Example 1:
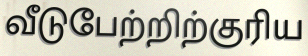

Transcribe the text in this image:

வீடுபேற்றிற்குரிய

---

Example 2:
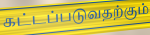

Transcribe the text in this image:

கட்டப்படுவதற்கும்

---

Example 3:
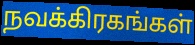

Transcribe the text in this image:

நவக்கிரகங்கள்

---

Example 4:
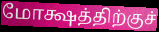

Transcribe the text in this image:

மோக்ஷத்திற்குச்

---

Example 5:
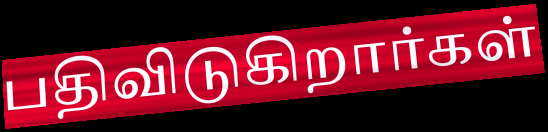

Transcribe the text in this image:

பதிவிடுகிறார்கள்